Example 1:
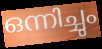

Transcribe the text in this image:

ഒന്നിച്ചും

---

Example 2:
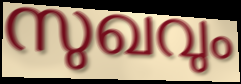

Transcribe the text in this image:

സുഖവും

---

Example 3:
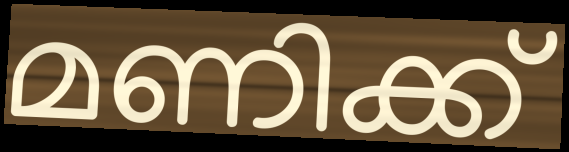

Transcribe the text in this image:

മണിക്ക്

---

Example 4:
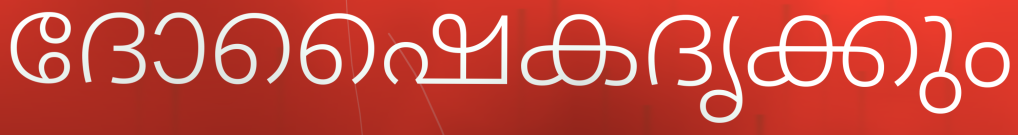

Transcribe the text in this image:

ദോഷൈകദൃക്കും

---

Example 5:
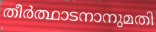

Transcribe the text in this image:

തീർത്ഥാടനാനുമതി